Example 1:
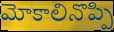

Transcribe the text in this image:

మోకాలినొప్పి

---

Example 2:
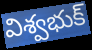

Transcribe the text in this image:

విశ్వభుక్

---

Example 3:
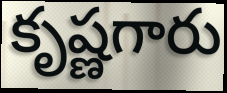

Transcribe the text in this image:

కృష్ణగారు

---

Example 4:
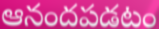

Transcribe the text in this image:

ఆనందపడటం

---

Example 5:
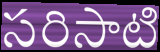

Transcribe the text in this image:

సరిసాటి